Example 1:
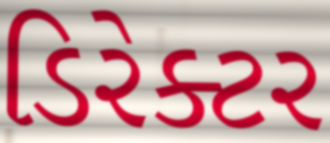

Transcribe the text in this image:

ડિરેક્ટર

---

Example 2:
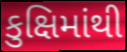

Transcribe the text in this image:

કુક્ષિમાંથી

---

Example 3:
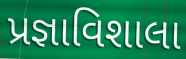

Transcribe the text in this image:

પ્રજ્ઞાવિશાલા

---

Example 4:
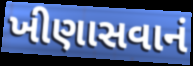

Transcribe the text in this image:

ખીણાસવાનં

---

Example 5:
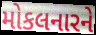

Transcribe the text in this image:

મોકલનારને